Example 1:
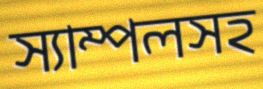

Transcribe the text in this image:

স্যাম্পলসহ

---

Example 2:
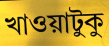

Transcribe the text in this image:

খাওয়াটুকু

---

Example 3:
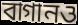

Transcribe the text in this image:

বাগানও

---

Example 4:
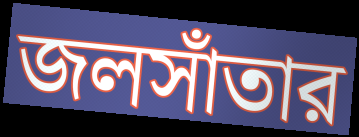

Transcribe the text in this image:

জলসাঁতার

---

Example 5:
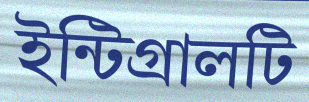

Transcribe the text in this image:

ইন্টিগ্রালটি